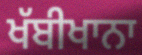
ਖੱਬੀਖਾਨਾ